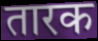
तारक